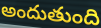
అందుతుంది